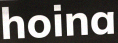
hoina